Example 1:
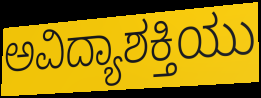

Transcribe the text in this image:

ಅವಿದ್ಯಾಶಕ್ತಿಯು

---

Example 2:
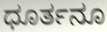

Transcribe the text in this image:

ಧೂರ್ತನೂ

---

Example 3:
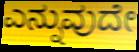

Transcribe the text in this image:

ಎನ್ನುವುದೇ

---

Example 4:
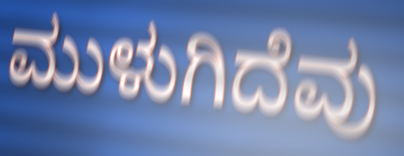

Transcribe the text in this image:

ಮುಳುಗಿದೆವು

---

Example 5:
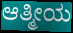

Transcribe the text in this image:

ಆತ್ಮೀಯ